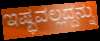
ಇಷ್ಟವಲ್ಲದ್ದನ್ನು